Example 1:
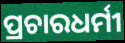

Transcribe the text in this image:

ପ୍ରଚାରଧର୍ମୀ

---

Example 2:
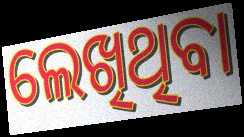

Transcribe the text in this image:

ଲେଖିଥିବା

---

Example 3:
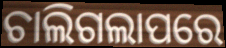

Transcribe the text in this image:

ଚାଲିଗଲାପରେ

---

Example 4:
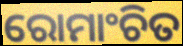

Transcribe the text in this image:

ରୋମାଂଚିତ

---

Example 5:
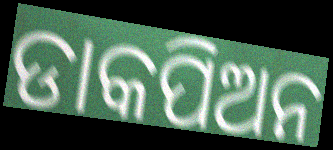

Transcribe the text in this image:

ଡାକପିଅନ